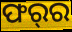
ଫର୍‌ର